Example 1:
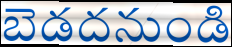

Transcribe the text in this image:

బెడదనుండి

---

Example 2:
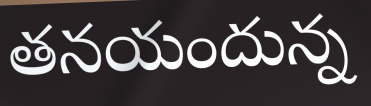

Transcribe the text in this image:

తనయందున్న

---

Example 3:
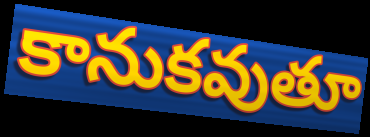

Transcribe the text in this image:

కానుకవుతూ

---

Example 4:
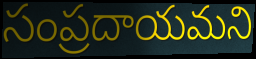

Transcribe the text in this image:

సంప్రదాయమని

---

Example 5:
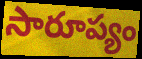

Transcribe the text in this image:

సారూప్యం